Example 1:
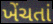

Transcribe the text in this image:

ખેંચતાં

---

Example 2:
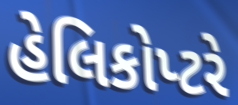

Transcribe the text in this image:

હેલિકોપ્ટરે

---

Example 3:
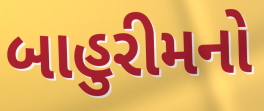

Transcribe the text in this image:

બાહુરીમનો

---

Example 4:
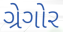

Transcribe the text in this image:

ગ્રેગોર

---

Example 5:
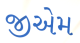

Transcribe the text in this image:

જીએમ